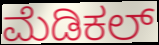
ಮೆಡಿಕಲ್